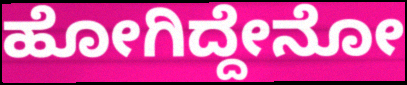
ಹೋಗಿದ್ದೇನೋ